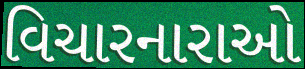
વિચારનારાઓ